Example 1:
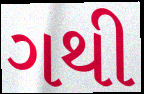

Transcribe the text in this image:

ગથી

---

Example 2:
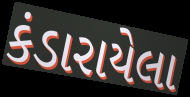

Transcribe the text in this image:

કંડારાયેલા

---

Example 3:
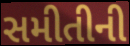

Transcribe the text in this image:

સમીતીની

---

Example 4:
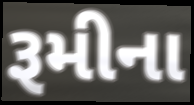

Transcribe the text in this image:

રૂમીના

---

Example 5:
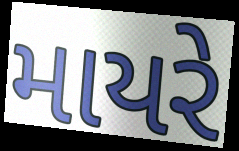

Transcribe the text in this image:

માયરે